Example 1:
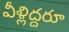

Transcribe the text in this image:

వీళ్లిద్దరూ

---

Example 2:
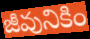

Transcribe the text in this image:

జీవునికిం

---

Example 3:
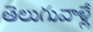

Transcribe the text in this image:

తెలుగువాళ్లే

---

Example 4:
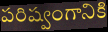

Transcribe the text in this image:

పరిష్వంగానికి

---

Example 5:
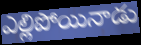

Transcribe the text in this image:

ఎల్లిపోయినాడు